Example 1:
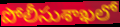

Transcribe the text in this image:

పోలీసుశాఖలో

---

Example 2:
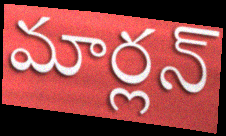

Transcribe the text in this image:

మార్లన్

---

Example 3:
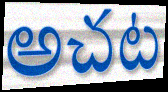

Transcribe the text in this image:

అచట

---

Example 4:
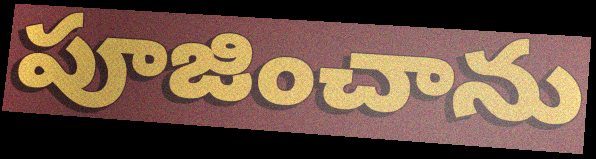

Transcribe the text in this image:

పూజించాను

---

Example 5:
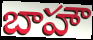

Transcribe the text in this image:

బాహౌ